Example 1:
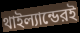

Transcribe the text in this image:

থাইল্যান্ডেরই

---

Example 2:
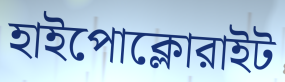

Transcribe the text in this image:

হাইপোক্লোরাইট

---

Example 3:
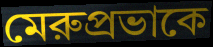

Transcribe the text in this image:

মেরুপ্রভাকে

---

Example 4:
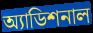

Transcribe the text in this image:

অ্যাডিশনাল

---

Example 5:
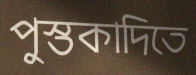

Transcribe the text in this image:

পুস্তকাদিতে